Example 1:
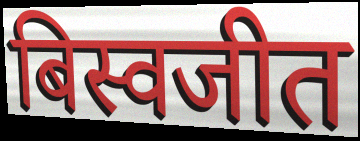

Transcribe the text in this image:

बिस्वजीत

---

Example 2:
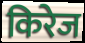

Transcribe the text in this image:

किरेज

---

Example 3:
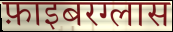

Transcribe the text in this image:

फ़ाइबरग्लास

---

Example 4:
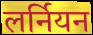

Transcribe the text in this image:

लर्नियन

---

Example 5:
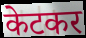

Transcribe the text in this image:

केटकर